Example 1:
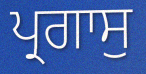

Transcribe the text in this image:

ਪ੍ਰਗਾਸੁ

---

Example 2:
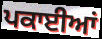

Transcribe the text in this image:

ਪਕਾਈਆਂ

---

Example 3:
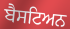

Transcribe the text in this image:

ਬੈਸਟਿਅਨ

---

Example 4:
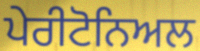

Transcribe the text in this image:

ਪੇਰੀਟੋਨਿਅਲ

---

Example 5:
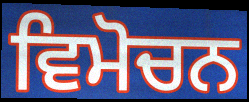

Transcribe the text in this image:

ਵਿਮੋਚਨ